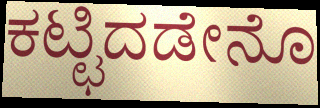
ಕಟ್ಟಿದಡೇನೊ